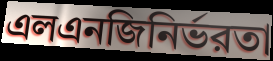
এলএনজিনির্ভরতা